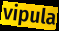
vipula